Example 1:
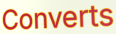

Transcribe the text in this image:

Converts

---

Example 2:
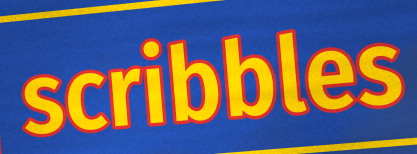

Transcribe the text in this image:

scribbles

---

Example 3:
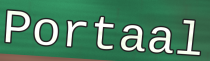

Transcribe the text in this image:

Portaal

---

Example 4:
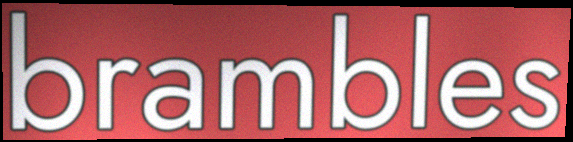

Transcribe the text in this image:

brambles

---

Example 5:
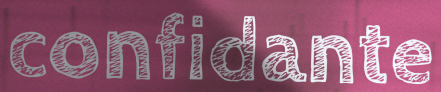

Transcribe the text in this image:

confidante